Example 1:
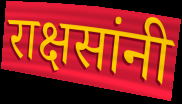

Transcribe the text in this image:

राक्षसांनी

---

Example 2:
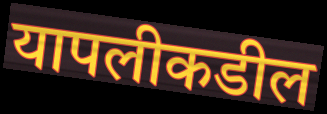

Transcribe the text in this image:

यापलीकडील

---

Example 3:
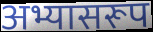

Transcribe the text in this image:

अभ्यासरूप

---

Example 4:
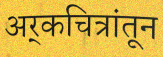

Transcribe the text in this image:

अर्कचित्रांतून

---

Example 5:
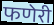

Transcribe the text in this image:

फणेरी